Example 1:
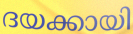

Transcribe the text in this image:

ദയക്കായി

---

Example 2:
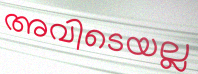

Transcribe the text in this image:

അവിടെയല്ല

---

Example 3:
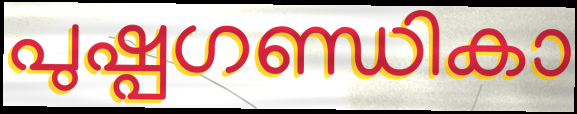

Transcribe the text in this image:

പുഷ്പഗണ്ഡികാ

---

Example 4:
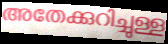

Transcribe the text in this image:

അതേക്കുറിച്ചുള്ള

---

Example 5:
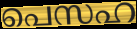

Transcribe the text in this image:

പെസഹ